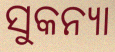
ସୁକନ୍ୟା